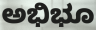
ಅಭಿಭೂ